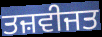
ਤਜ਼ਵੀਜਤ